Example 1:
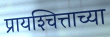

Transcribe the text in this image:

प्रायश्‍चित्ताच्या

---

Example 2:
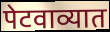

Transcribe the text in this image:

पेटवाव्यात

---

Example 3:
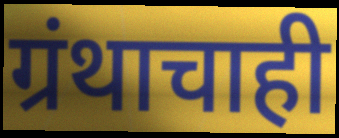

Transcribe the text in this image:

ग्रंथाचाही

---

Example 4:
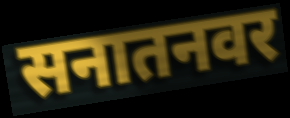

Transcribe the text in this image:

सनातनवर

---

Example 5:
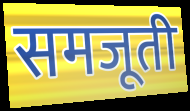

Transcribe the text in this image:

समजूती